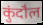
कुंदौल